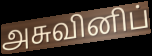
அசுவினிப்